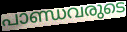
പാണ്ഡവരുടെ